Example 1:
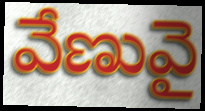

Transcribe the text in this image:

వేణువై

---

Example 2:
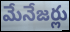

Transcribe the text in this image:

మేనేజర్లు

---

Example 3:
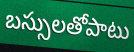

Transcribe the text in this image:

బస్సులతోపాటు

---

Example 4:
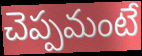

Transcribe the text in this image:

చెప్పమంటే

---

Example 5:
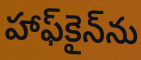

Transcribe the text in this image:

హాఫ్‌కైన్‌ను